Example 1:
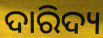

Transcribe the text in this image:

ଦାରିଦ୍ୟ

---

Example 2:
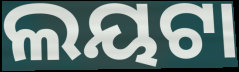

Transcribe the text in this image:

ଲୟଟା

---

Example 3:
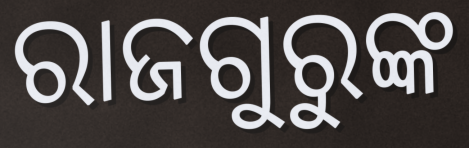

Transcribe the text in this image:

ରାଜଗୁରୁଙ୍କ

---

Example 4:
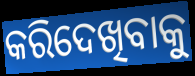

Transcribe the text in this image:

କରିଦେଖିବାକୁ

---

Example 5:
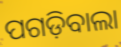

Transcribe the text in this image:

ପଗଡ଼ିବାଲା